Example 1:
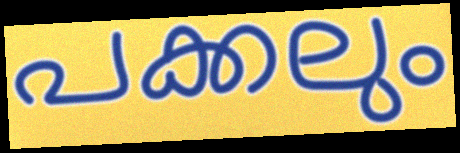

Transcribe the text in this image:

പക്കലും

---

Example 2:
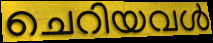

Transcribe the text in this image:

ചെറിയവൾ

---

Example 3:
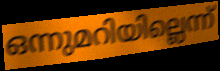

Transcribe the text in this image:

ഒന്നുമറിയില്ലെന്ന്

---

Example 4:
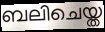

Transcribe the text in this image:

ബലിചെയ്ത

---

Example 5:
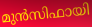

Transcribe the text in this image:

മുൻസിഫായി